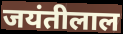
जयंतीलाल